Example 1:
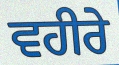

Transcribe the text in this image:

ਵਹੀਰੇ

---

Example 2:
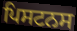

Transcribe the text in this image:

ਪਿਸਟਨਸ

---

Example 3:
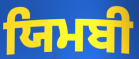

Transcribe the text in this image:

ਯਿਮਬੀ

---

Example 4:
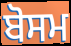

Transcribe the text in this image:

ਬੋਸਮ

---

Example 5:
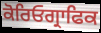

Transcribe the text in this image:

ਕੋਰਿਓਗ੍ਰਾਫਿਕ